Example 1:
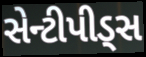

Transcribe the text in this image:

સેન્ટીપીડ્સ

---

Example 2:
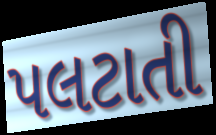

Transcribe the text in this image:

પલટાતી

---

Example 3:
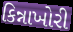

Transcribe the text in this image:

કિન્નાખોરી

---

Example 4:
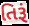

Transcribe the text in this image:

તિરૂં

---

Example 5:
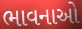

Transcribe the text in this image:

ભાવનાઓ